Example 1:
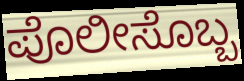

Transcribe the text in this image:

ಪೊಲೀಸೊಬ್ಬ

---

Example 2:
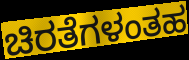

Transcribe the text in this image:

ಚಿರತೆಗಳಂತಹ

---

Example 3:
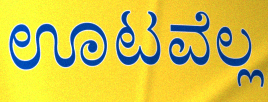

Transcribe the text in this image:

ಊಟವೆಲ್ಲ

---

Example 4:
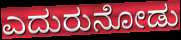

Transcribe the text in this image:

ಎದುರುನೋಡು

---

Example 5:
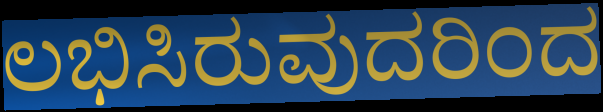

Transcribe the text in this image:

ಲಭಿಸಿರುವುದರಿಂದ